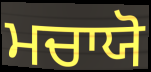
ਮਚਾਯੋ